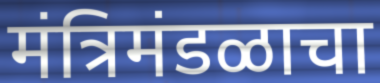
मंत्रिमंडळाचा